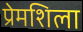
प्रेमशिला